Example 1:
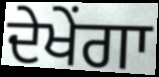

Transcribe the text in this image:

ਦੇਖੇਂਗਾ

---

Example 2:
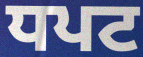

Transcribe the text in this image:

ਧਪਟ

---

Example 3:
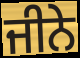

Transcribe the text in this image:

ਜੀਨੇ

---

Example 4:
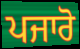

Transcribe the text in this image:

ਪਜਾਰੋ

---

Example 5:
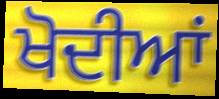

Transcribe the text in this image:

ਖੋਦੀਆਂ